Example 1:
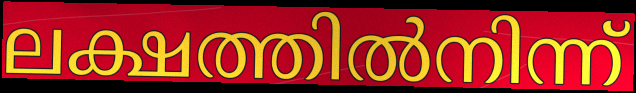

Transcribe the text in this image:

ലക്ഷത്തിൽനിന്ന്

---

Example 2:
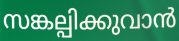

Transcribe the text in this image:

സങ്കല്പിക്കുവാൻ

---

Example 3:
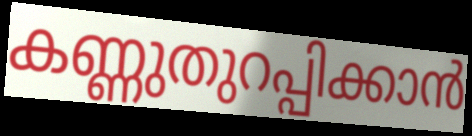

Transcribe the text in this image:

കണ്ണുതുറപ്പിക്കാൻ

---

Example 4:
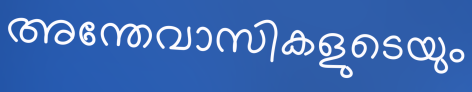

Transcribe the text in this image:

അന്തേവാസികളുടെയും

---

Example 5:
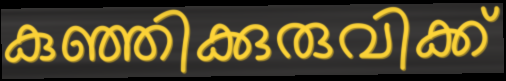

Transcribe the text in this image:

കുഞ്ഞിക്കുരുവിക്ക്